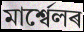
মাৰ্শ্বেলৰ